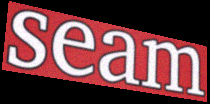
seam